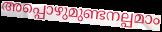
അപ്പൊഴുമുണ്ടനല്പമാം